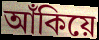
আঁকিয়ে